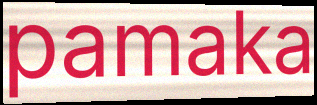
pamaka